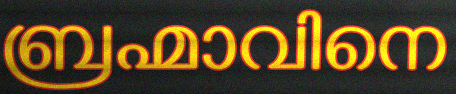
ബ്രഹ്മാവിനെ